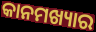
କାନମଖ୍ୟାର